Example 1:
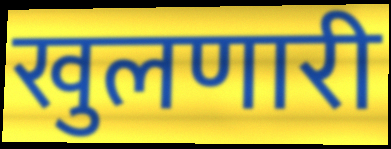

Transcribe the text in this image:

खुलणारी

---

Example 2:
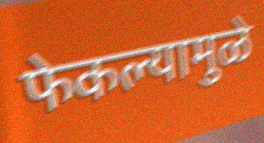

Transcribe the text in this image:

फेकल्यामुळे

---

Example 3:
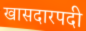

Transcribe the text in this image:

खासदारपदी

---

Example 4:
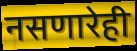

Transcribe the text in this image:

नसणारेही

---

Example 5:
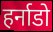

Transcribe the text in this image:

हर्नाडो